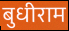
बुधीराम